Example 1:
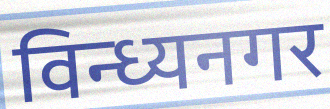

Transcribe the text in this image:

विन्ध्यनगर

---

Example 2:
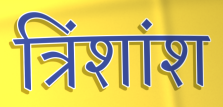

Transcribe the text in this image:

त्रिंशांश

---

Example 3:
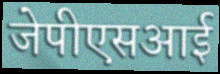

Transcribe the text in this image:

जेपीएसआई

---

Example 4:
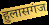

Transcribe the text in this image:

हुलासगंज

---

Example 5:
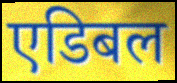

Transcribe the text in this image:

एडिबल